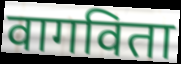
वागविता